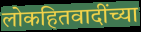
लोकहितवादींच्या